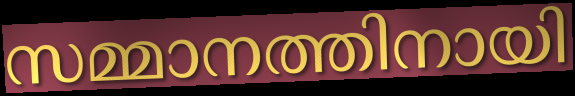
സമ്മാനത്തിനായി